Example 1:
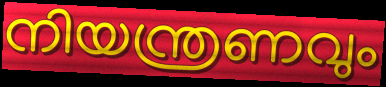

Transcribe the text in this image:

നിയന്ത്രണവും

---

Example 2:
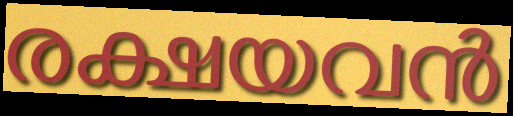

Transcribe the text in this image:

രക്ഷയവൻ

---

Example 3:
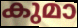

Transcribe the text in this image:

കുമാ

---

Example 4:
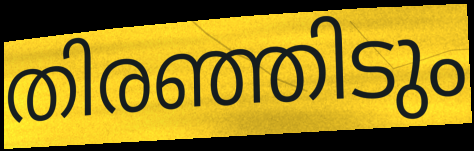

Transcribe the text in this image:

തിരഞ്ഞിടും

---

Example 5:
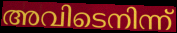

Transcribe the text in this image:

അവിടെനിന്ന്